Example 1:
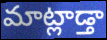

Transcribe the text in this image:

మాట్లాడ్తా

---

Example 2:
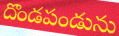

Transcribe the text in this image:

దొండపండును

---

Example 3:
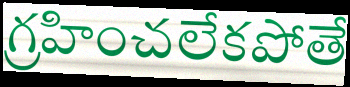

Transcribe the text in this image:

గ్రహించలేకపోతే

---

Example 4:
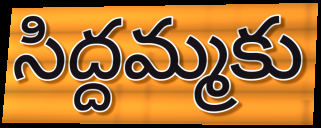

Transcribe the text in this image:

సిద్దమ్మకు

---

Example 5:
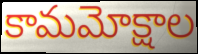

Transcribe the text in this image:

కామమోక్షాల